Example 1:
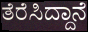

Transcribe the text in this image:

ತೆರೆಸಿದ್ದಾನೆ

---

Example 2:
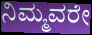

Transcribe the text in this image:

ನಿಮ್ಮವರೇ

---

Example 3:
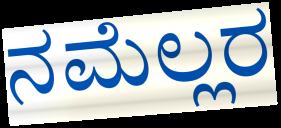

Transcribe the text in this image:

ನಮೆಲ್ಲರ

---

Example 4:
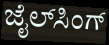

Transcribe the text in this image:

ಜೈಲ್‌ಸಿಂಗ್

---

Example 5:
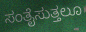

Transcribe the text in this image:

ಸಂತೈಸುತ್ತಲೂ